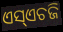
ଏସ୍ଏଚଜି